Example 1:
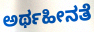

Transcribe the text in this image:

ಅರ್ಥಹೀನತೆ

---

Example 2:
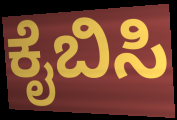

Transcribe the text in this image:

ಕೈಬಿಸಿ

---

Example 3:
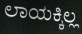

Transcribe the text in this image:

ಲಾಯಕ್ಕಿಲ್ಲ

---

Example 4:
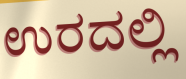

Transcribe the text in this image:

ಉರದಲ್ಲಿ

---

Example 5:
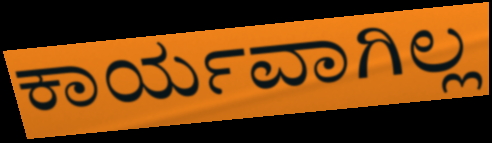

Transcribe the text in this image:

ಕಾರ್ಯವಾಗಿಲ್ಲ